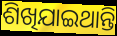
ଶିଖିଯାଇଥାନ୍ତି